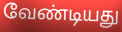
வேண்டியது